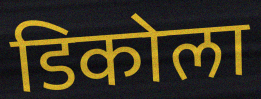
डिकोला